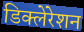
डिक्लेरेशन